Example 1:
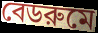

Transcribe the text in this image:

বেডরুমে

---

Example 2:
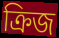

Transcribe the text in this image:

ক্রিজ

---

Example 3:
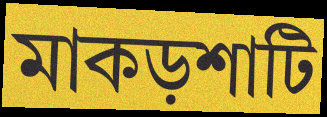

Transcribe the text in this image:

মাকড়শাটি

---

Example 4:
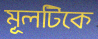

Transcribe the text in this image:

মূলটিকে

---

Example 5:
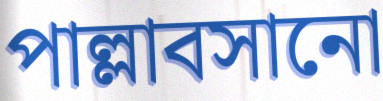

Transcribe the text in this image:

পাল্লাবসানো